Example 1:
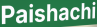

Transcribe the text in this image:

Paishachi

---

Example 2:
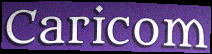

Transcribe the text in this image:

Caricom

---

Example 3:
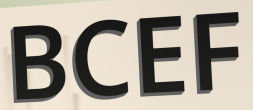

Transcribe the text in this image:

BCEF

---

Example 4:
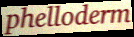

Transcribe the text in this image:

phelloderm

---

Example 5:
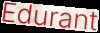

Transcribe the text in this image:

Edurant